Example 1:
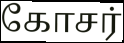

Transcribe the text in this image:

கோசர்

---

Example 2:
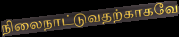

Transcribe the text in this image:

நிலைநாட்டுவதற்காகவே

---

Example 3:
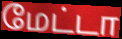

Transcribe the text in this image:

மேட்டா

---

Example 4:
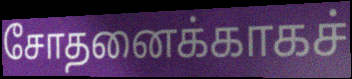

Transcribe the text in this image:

சோதனைக்காகச்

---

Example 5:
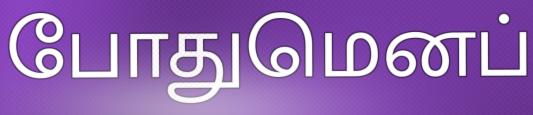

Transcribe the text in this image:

போதுமெனப்